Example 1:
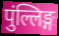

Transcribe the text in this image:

पुंल्लिङ्ग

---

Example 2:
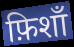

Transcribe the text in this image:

फ़िशाँ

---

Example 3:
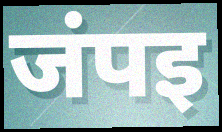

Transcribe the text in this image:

जंपइ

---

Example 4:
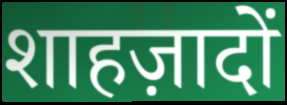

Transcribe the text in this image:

शाहज़ादों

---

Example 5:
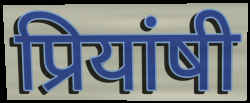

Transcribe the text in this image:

प्रियांषी